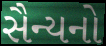
સૈન્યનો